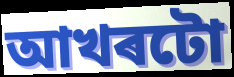
আখৰটো